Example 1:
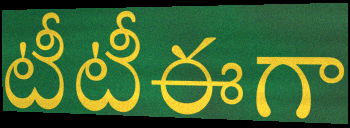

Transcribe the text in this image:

టీటీఈగా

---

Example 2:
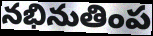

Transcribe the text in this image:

నభినుతింప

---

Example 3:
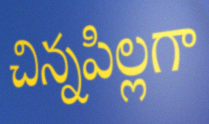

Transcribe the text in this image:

చిన్నపిల్లగా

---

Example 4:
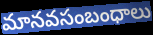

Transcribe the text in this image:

మానవసంబంధాలు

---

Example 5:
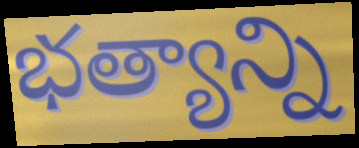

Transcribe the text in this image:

భత్యాన్ని